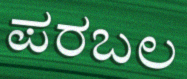
ಪರಬಲ